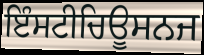
ਇੰਸਟੀਚਿਊਸਨਜ